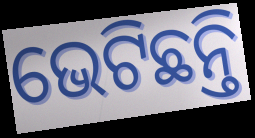
ଭେଟିଛନ୍ତି